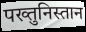
पख्तुनिस्तान